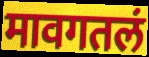
मावगतलं